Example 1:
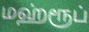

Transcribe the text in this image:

மஹ்ரூப்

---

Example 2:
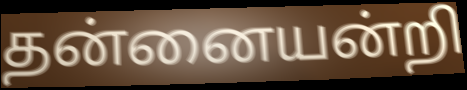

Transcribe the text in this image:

தன்னையன்றி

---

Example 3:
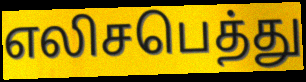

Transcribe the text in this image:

எலிசபெத்து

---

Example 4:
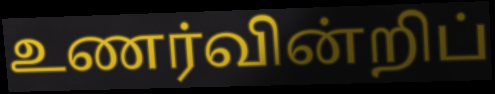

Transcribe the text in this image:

உணர்வின்றிப்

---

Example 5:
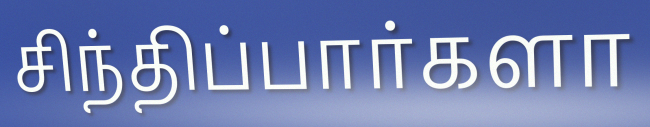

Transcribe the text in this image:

சிந்திப்பார்களா